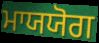
ਮਾਯਯੋਗ